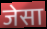
जेसा